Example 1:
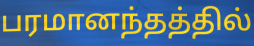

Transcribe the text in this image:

பரமானந்தத்தில்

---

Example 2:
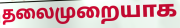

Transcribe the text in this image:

தலைமுறையாக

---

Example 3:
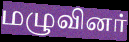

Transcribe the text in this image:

மழுவினர்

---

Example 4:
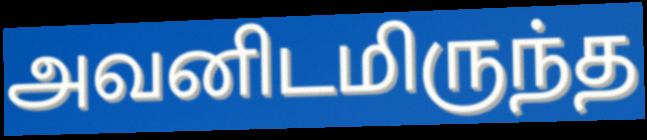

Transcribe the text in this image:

அவனிடமிருந்த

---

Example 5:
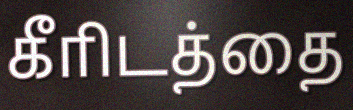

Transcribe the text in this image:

கீரிடத்தை